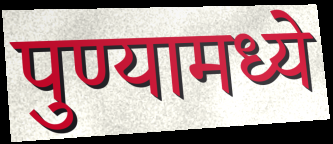
पुण्यामध्ये